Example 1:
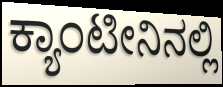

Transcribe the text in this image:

ಕ್ಯಾಂಟೀನಿನಲ್ಲಿ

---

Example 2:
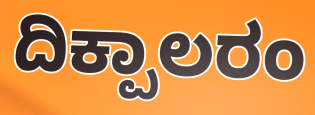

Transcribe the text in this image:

ದಿಕ್ಪಾಲರಂ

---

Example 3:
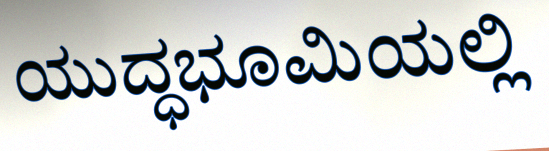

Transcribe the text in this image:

ಯುದ್ಧಭೂಮಿಯಲ್ಲಿ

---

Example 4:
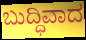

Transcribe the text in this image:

ಬುದ್ಧಿವಾದ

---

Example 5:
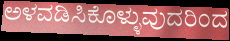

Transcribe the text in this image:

ಅಳವಡಿಸಿಕೊಳ್ಳುವುದರಿಂದ